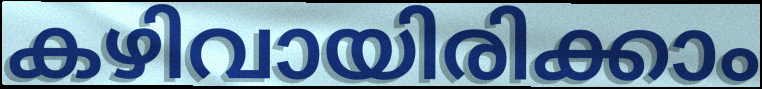
കഴിവായിരിക്കാം